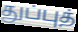
துப்புத்